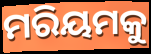
ମରିୟମକୁ